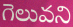
గెలువని